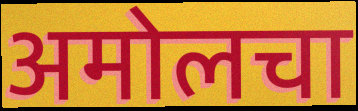
अमोलचा